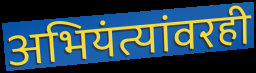
अभियंत्यांवरही